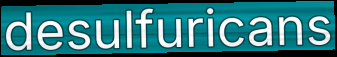
desulfuricans